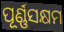
ପୂର୍ଣ୍ଣସକ୍ଷମ